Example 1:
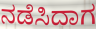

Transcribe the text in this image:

ನಡೆಸಿದಾಗ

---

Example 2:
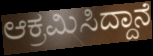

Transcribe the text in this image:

ಆಕ್ರಮಿಸಿದ್ದಾನೆ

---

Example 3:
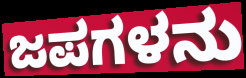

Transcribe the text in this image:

ಜಪಗಳನು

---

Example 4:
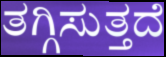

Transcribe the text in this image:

ತಗ್ಗಿಸುತ್ತದೆ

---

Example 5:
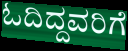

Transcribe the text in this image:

ಓದಿದ್ದವರಿಗೆ